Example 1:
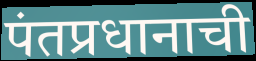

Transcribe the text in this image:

पंतप्रधानाची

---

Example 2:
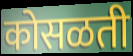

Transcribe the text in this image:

कोसळती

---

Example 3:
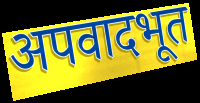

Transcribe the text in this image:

अपवादभूत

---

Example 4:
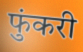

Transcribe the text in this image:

फुंकरी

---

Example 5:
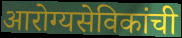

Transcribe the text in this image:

आरोग्यसेविकांची